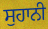
ਸੁਹਾਨੀ